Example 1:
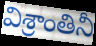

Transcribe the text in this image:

విశ్రాంతినీ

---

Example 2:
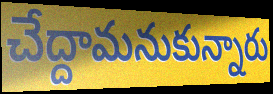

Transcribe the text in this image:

చేద్దామనుకున్నారు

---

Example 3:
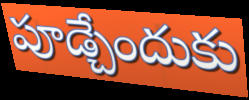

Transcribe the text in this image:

పూడ్చేందుకు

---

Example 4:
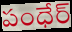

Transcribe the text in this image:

పంధేర్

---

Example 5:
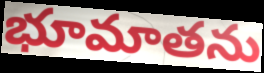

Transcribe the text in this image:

భూమాతను